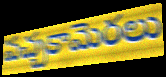
పచ్చకామెరలు